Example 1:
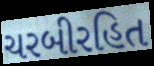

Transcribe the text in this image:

ચરબીરહિત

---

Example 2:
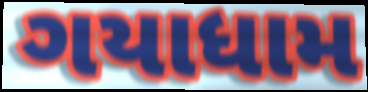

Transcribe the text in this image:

ગયાધામ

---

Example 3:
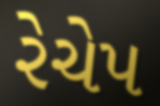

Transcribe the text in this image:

રેચેપ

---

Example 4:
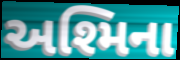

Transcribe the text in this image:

અશ્મિના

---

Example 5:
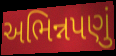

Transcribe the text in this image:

અભિન્નપણું